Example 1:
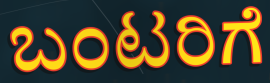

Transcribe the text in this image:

ಬಂಟರಿಗೆ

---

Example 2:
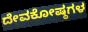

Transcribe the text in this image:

ದೇವಕೋಷ್ಠಗಳ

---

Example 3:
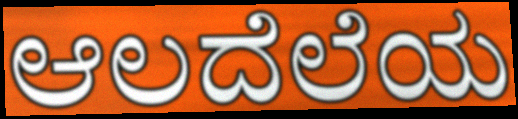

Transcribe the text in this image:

ಆಲದೆಲೆಯ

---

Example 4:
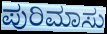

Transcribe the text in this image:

ಪುರಿಮಾಸು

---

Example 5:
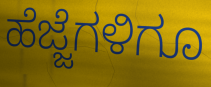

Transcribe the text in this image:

ಹೆಜ್ಜೆಗಳಿಗೂ